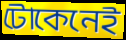
টোকেনেই